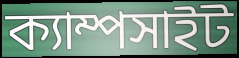
ক্যাম্পসাইট